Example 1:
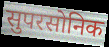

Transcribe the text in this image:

सुपरसोनिक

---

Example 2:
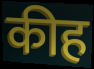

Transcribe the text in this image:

कीह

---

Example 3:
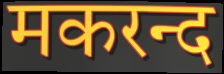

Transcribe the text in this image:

मकरन्द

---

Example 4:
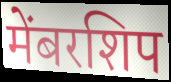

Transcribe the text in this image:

मेंबरशिप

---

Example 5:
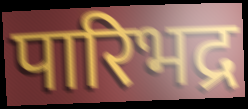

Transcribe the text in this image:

पारिभद्र